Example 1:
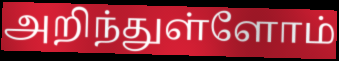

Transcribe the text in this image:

அறிந்துள்ளோம்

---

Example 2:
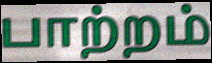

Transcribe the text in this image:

பாற்றம்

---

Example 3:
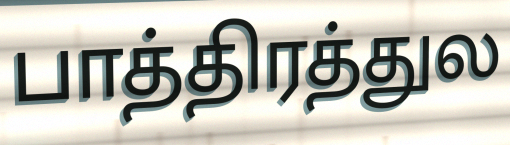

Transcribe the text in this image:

பாத்திரத்துல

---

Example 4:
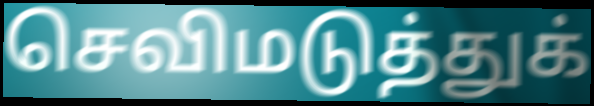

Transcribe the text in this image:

செவிமடுத்துக்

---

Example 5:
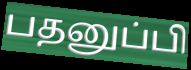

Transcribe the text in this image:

பதனுப்பி